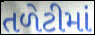
તળેટીમાં